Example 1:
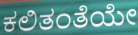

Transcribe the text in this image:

ಕಲಿತಂತೆಯೇ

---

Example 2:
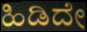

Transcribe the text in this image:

ಹಿಡಿದೇ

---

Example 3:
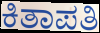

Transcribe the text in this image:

ಕಿತಾಪತಿ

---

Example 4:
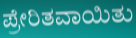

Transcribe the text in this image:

ಪ್ರೇರಿತವಾಯಿತು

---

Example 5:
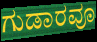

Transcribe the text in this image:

ಗುಡಾರವೂ